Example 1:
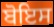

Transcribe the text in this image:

ਬੋਇਸ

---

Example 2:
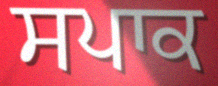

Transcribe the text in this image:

ਸਪਾਕ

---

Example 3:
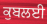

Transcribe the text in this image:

ਕੁਬਲਈ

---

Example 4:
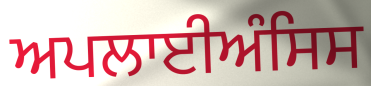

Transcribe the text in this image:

ਅਪਲਾਈਅੰਸਿਸ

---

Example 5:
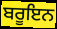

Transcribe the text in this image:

ਬਰੂਇਨ